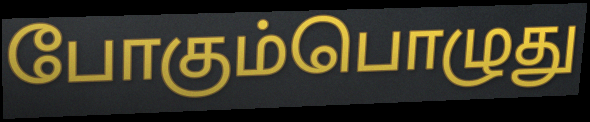
போகும்பொழுது